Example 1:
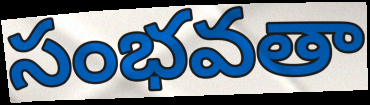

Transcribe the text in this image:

సంభవతా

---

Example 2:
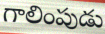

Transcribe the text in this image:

గాలింపుడు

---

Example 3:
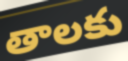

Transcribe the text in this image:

తాలకు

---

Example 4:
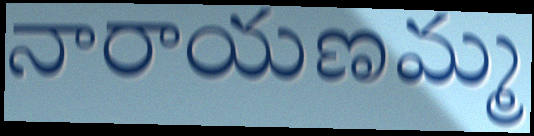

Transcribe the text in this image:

నారాయణమ్మ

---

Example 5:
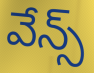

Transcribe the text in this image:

వేన్స్